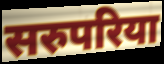
सरुपरिया